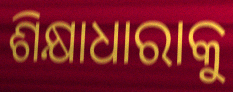
ଶିକ୍ଷାଧାରାକୁ